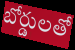
బోర్డులతో